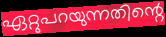
ഏറ്റുപറയുന്നതിന്റെ